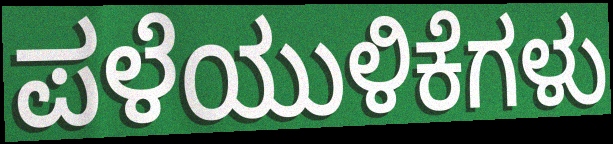
ಪಳೆಯುಳಿಕೆಗಳು